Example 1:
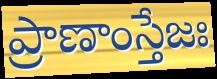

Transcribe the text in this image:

ప్రాణాంస్తేజః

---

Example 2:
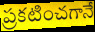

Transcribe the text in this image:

ప్రకటించగానే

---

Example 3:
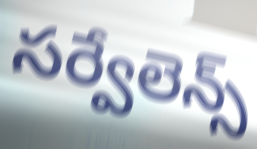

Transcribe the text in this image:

సర్వేలెన్స్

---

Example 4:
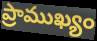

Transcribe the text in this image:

ప్రాముఖ్యం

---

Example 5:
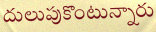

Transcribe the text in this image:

దులుపుకొంటున్నారు